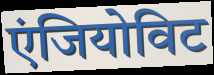
एंजियोविट